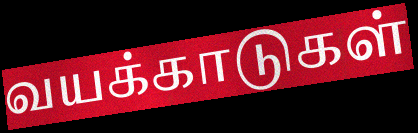
வயக்காடுகள்